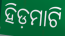
ହିଡ଼ମାଟି